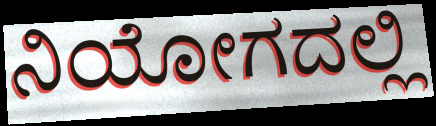
ನಿಯೋಗದಲ್ಲಿ